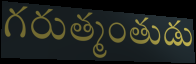
గరుత్మంతుడు